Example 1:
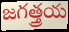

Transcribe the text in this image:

జగత్త్రయ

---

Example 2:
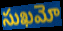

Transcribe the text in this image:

సుఖమో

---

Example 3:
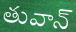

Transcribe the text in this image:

తువాన్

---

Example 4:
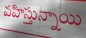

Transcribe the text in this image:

వహిస్తున్నాయి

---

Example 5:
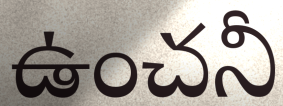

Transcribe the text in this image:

ఉంచనీ